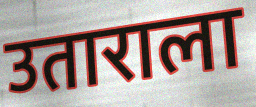
उताराला